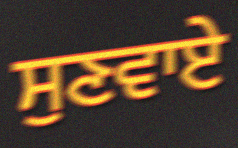
ਸੁਣਵਾਏ